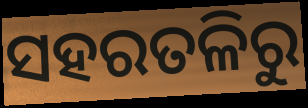
ସହରତଳିରୁ